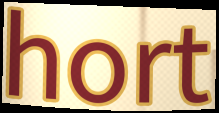
hort